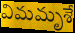
విమమృశే